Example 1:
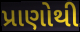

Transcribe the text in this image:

પ્રાણોથી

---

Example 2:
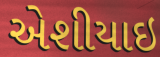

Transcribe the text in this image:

એશીયાઇ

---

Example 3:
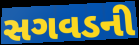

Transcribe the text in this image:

સગવડની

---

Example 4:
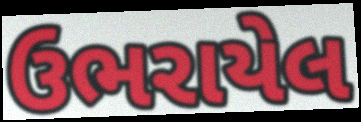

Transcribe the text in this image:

ઉભરાયેલ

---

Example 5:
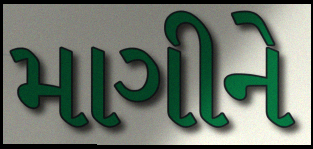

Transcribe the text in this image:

માગીને